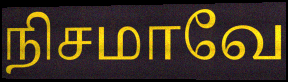
நிசமாவே